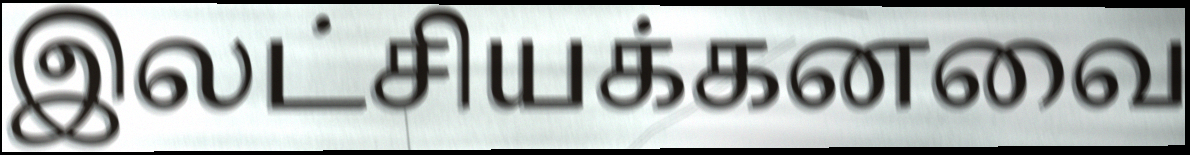
இலட்சியக்கனவை